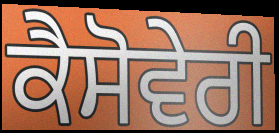
ਕੈਸੋਵੇਰੀ